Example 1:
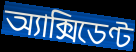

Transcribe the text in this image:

অ্যাক্সিডেণ্ট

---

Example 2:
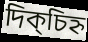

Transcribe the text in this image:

দিক্‌চিহ্ন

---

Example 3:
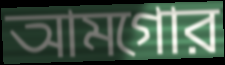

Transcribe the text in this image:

আমগোর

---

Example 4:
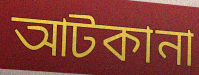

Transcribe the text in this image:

আটকানা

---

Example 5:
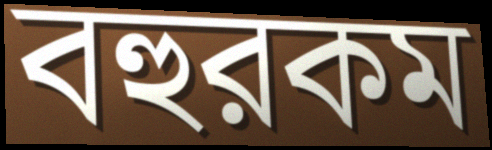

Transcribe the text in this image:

বহুরকম